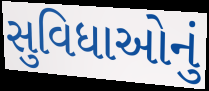
સુવિધાઓનું